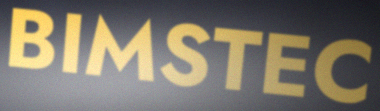
BIMSTEC